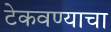
टेकवण्याचा